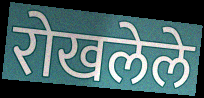
रोखलेले